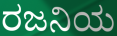
ರಜನಿಯ